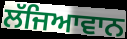
ਲੱਜਿਆਵਾਨ